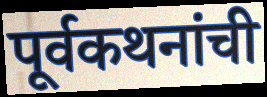
पूर्वकथनांची